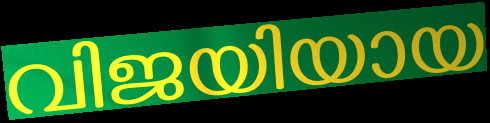
വിജയിയായ